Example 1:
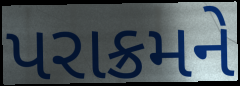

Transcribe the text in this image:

પરાક્રમને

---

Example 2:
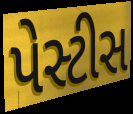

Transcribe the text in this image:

પેસ્ટીસ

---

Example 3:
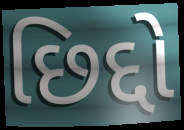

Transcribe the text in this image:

છિદ્દો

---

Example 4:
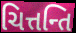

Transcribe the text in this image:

ચિત્તન્તિ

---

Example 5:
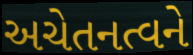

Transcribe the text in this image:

અચેતનત્વને